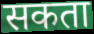
सकता